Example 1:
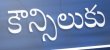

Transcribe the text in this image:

కౌన్సిలుకు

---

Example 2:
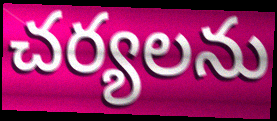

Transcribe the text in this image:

చర్యలను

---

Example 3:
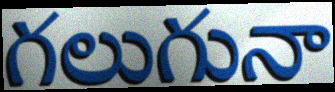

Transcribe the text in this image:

గలుగునా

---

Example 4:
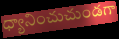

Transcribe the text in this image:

ధ్యానించుచుండగా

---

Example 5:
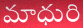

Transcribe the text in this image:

మాధురి